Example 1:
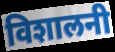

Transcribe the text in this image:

विशालनी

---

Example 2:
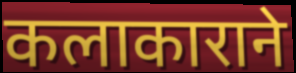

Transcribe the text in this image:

कलाकाराने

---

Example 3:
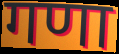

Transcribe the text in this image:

गणा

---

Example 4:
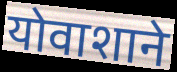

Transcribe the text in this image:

योवाशाने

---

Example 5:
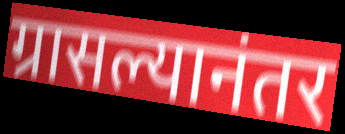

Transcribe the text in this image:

ग्रासल्यानंतर